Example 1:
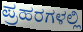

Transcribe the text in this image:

ಪ್ರಹರಗಳಲ್ಲಿ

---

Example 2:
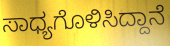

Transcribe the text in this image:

ಸಾಧ್ಯಗೊಳಿಸಿದ್ದಾನೆ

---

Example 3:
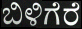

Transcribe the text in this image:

ಬಿಳಿಗೆರೆ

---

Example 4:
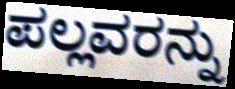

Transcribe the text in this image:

ಪಲ್ಲವರನ್ನು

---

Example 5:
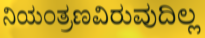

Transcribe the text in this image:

ನಿಯಂತ್ರಣವಿರುವುದಿಲ್ಲ